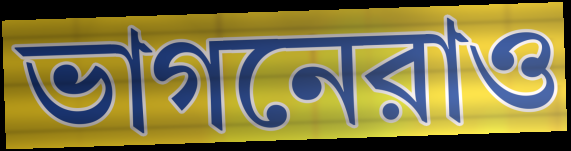
ভাগনেরাও